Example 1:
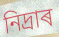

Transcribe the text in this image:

নিদ্ৰাৰ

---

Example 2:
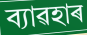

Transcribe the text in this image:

ব্যাৱহাৰ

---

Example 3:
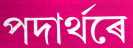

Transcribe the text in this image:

পদাৰ্থৰে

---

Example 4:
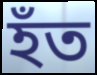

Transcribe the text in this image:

হঁত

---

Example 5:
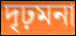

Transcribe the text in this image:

দৃঢ়মনা